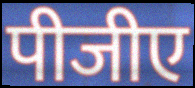
पीजीए